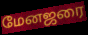
மேனஜரை